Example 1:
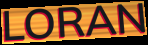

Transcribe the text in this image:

LORAN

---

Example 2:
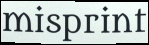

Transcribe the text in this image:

misprint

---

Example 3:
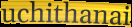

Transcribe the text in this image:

uchithanai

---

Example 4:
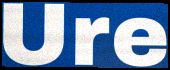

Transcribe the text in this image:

Ure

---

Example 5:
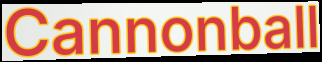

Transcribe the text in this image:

Cannonball